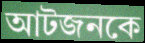
আটজনকে